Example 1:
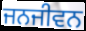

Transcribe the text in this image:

ਜਨਜੀਵਨ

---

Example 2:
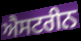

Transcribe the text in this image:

ਐਸਟਰੀਨ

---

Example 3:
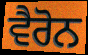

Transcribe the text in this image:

ਵੈਰੋਨ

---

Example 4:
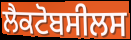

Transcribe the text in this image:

ਲੈਕਟੋਬਸੀਲਸ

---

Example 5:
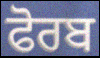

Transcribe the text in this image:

ਫੋਰਬ